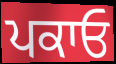
ਪਕਾਓ